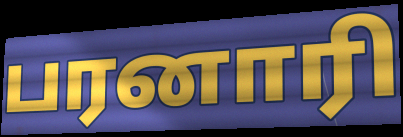
பரனாரி